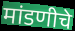
मांडणीचे